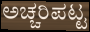
ಅಚ್ಚರಿಪಟ್ಟ